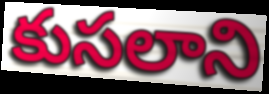
కుసలాని